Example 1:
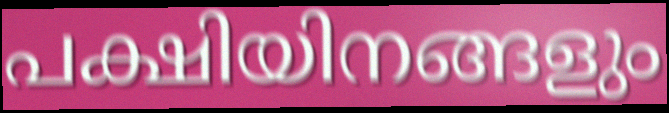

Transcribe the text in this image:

പക്ഷിയിനങ്ങളും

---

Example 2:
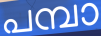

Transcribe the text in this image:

പമ്പാ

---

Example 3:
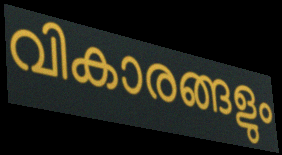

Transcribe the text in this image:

വികാരങ്ങളും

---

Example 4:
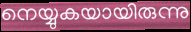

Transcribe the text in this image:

നെയ്യുകയായിരുന്നു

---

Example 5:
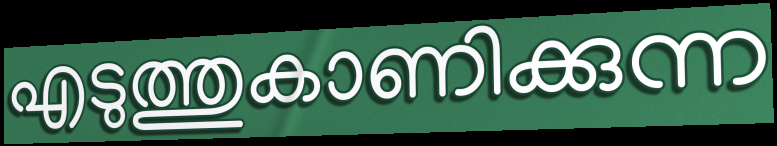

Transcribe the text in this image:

എടുത്തുകാണിക്കുന്ന